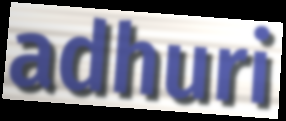
adhuri